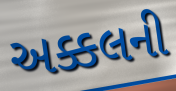
અક્કલની